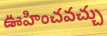
ఊహించవచ్చు